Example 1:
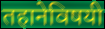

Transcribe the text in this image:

तहानेविषयी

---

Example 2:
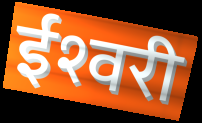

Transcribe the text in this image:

ईश्वरी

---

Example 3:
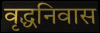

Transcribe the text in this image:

वृद्धनिवास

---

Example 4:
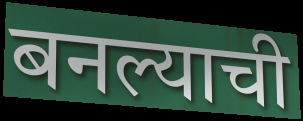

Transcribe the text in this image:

बनल्याची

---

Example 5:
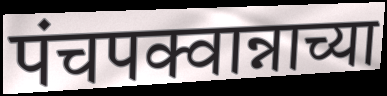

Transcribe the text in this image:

पंचपक्वान्नाच्या